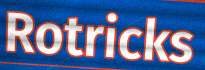
Rotricks